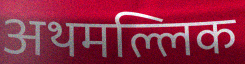
अथमल्लिक